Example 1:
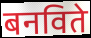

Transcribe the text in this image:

बनविते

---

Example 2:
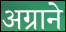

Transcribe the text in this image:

अग्राने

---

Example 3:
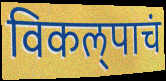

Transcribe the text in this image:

विकल्पाचं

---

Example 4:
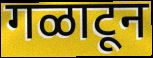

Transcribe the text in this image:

गळाटून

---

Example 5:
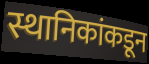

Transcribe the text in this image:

स्थानिकांकडून